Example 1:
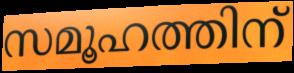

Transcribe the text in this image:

സമൂഹത്തിന്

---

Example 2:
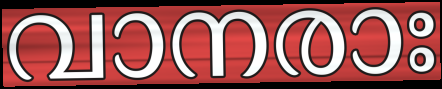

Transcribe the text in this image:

വാനരാഃ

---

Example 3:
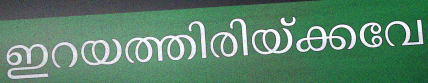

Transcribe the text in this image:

ഇറയത്തിരിയ്ക്കവേ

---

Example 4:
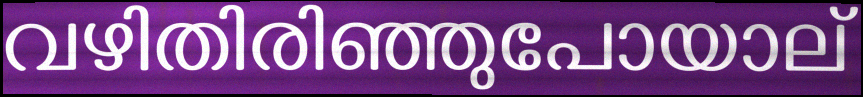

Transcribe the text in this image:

വഴിതിരിഞ്ഞുപോയാല്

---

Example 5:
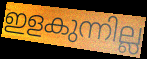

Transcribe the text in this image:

ഇളകുന്നില്ല